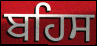
ਬਹਿਸ